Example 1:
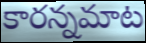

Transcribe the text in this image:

కారన్నమాట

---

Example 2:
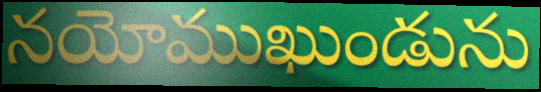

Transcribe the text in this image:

నయోముఖుండును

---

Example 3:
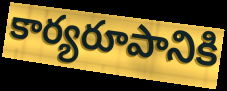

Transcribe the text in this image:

కార్యరూపానికి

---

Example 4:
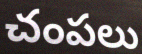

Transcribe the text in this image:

చంపలు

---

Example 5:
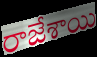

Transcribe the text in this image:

రాజేశాయి